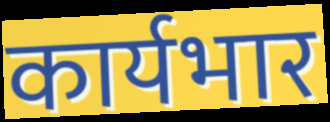
कार्यभार